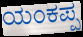
ಯಂಕಪ್ಪ